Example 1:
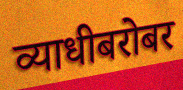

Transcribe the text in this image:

व्याधीबरोबर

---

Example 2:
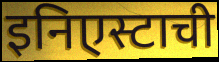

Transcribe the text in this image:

इनिएस्टाची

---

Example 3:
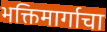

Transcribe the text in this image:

भक्तिमार्गाचा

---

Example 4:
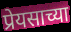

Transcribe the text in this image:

प्रेयसाच्या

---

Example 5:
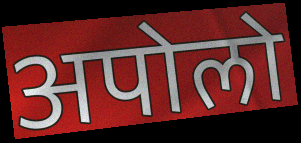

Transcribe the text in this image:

अपोलो